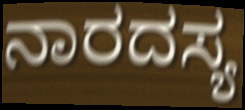
ನಾರದಸ್ಯ